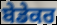
ਬੇਡੇਕਰ